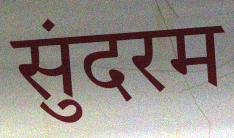
सुंदरम